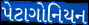
પેટાગોનિયન